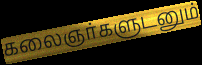
கலைஞர்களுடனும்